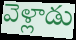
వెళ్లాడు